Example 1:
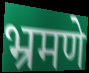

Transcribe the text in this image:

भ्रमणे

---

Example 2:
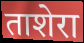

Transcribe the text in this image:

ताशेरा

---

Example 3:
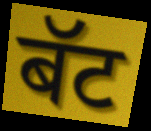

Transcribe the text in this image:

बॅट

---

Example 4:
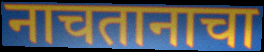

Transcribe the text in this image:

नाचतानाचा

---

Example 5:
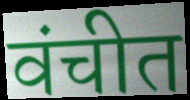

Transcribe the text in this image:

वंचीत